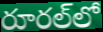
రూరల్‌లో